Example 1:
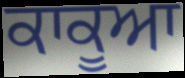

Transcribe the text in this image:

ਕਾਕੂਆ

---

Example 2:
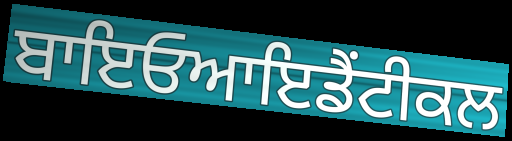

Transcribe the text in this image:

ਬਾਇਓਆਇਡੈਂਟੀਕਲ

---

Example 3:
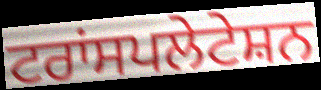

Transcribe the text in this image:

ਟਰਾਂਸਪਲੇਟੇਸ਼ਨ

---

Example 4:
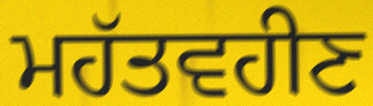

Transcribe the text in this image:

ਮਹੱਤਵਹੀਣ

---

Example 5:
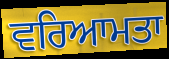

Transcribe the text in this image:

ਵਰਿਆਮਤਾ